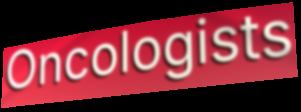
Oncologists